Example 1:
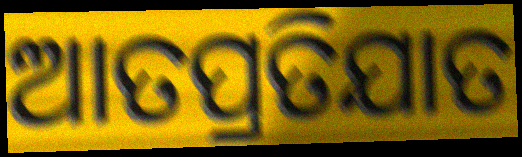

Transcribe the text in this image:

ଆତପ୍ରତିଯାତ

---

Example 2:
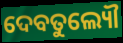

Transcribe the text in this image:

ଦେବତୁଲ୍ୟୌ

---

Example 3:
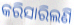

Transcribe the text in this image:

କରିସାରିଲଣି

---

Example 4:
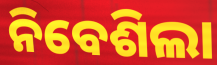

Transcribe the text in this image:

ନିବେଶିଲା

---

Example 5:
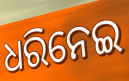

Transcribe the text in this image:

ଧରିନେଇ